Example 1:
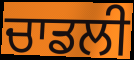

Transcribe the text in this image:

ਚਾਡਲੀ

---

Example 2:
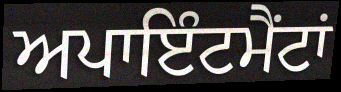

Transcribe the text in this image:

ਅਪਾਇੰਟਮੈਂਟਾਂ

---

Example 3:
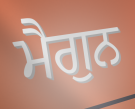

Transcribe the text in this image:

ਮੈਗੁਨ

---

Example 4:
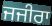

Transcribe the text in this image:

ਜਜੀਰਾ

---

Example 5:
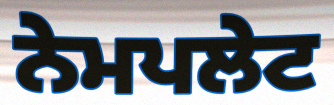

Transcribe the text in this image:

ਨੇਮਪਲੇਟ